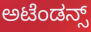
ಅಟೆಂಡನ್ಸ್